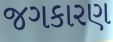
જગકારણ